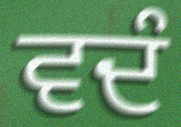
ਵਦੰ